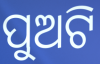
ପୁଅଟି